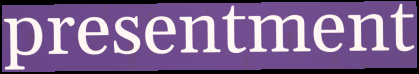
presentment